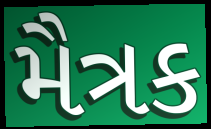
મૈત્રક